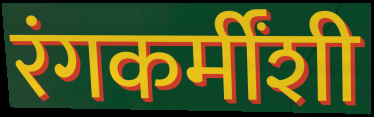
रंगकर्मींशी